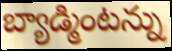
బ్యాడ్మింటన్ను